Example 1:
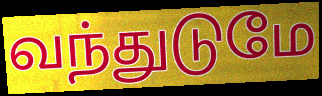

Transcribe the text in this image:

வந்துடுமே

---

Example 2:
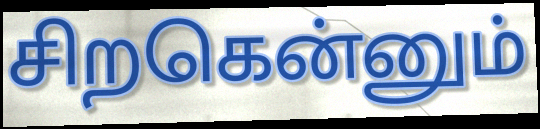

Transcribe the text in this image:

சிறகென்னும்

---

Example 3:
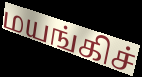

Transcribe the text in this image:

மயங்கிச்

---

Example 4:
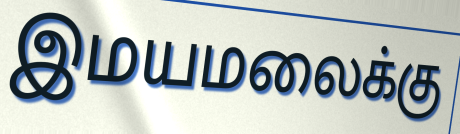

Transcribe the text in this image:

இமயமலைக்கு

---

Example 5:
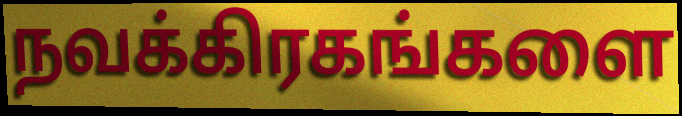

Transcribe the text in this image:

நவக்கிரகங்களை